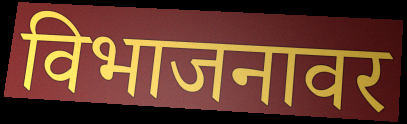
विभाजनावर